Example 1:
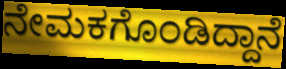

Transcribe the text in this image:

ನೇಮಕಗೊಂಡಿದ್ದಾನೆ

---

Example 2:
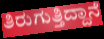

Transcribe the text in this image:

ತಿರುಗುತ್ತಿದ್ದಾನೆ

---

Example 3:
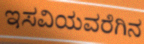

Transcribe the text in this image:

ಇಸವಿಯವರೆಗಿನ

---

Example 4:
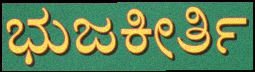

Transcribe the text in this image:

ಭುಜಕೀರ್ತಿ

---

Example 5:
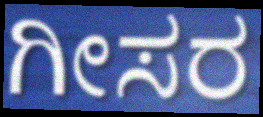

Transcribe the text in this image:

ಗೀಸರ